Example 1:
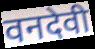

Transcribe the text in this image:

वनदेवी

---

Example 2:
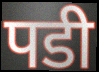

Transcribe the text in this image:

पडी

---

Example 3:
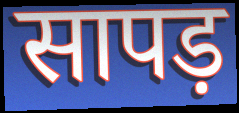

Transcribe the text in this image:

सापड़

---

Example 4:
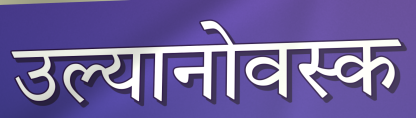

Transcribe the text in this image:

उल्यानोवस्क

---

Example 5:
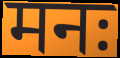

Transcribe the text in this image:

मनः